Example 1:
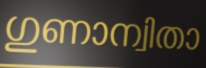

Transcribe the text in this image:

ഗുണാന്വിതാ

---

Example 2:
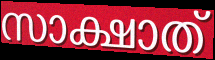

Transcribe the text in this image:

സാക്ഷാത്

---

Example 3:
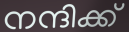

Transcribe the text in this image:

നന്ദിക്ക്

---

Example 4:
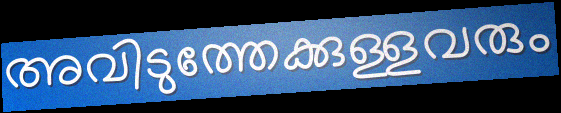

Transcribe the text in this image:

അവിടുത്തേക്കുള്ളവരും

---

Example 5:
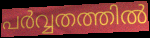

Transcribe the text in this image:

പർവ്വതത്തിൽ